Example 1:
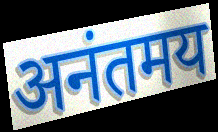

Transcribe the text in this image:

अनंतमय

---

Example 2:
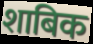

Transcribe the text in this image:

शाबिक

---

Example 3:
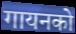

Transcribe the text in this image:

गायनको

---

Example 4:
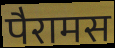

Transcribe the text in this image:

पैरामस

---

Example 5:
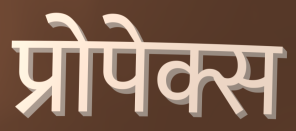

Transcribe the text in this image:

प्रोपेक्स